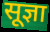
सूज्ञा